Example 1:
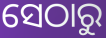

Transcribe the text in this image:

ସେଠାରୁ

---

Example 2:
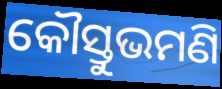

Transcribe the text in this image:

କୌସ୍ତୁଭମଣି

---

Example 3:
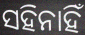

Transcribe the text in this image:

ସହିନାହିଁ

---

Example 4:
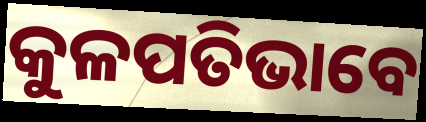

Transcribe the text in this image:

କୁଳପତିଭାବେ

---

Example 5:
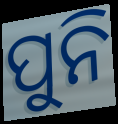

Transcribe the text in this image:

ପୁନି